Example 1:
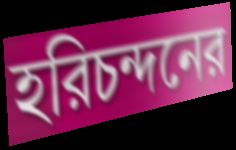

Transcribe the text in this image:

হরিচন্দনের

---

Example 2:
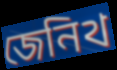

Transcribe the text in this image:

জেনিথ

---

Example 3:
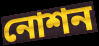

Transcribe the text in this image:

নোশন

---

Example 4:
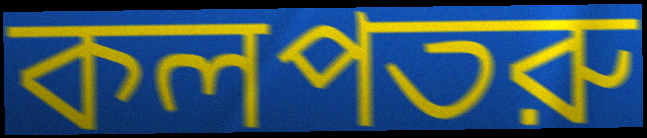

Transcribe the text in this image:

কলপতরু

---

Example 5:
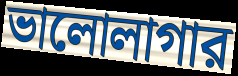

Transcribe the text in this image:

ভালোলাগার